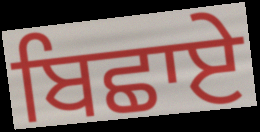
ਬਿਛਾਏ